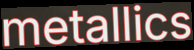
metallics